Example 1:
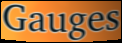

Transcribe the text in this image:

Gauges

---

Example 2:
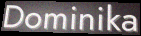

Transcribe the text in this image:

Dominika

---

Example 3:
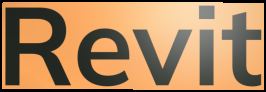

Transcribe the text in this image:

Revit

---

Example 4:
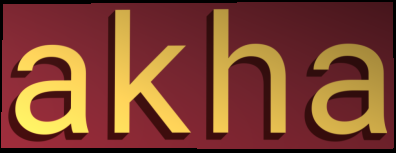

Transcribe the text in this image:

akha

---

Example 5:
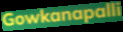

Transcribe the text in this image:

Gowkanapalli